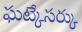
ఘట్కేసర్కు